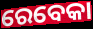
ରେବେକା